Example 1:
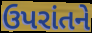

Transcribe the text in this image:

ઉપરાંતને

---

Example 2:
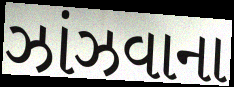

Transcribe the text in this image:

ઝાંઝવાના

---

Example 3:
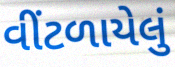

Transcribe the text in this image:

વીંટળાયેલું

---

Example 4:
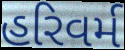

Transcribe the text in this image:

હરિવર્મ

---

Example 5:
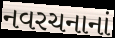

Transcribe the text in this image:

નવરચનાનાં